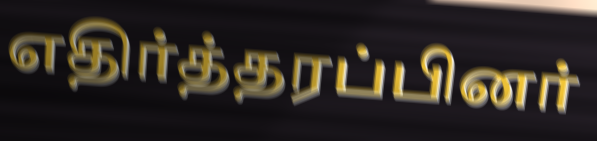
எதிர்த்தரப்பினர்